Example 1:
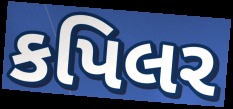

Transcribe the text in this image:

કપિલર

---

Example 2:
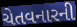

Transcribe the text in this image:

ચેતવનારની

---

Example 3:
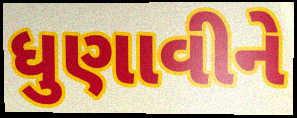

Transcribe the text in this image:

ધુણાવીને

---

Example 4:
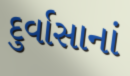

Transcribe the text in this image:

દુર્વાસાનાં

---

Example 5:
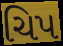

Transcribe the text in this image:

ચિપ